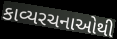
કાવ્યરચનાઓથી